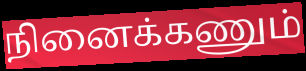
நினைக்கணும்